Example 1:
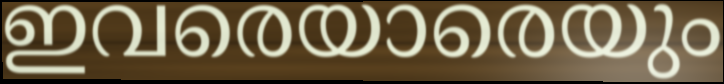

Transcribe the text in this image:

ഇവരെയാരെയും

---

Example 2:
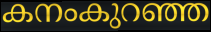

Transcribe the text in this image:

കനംകുറഞ്ഞ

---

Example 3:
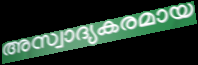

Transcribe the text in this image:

അസ്വാദ്യകരമായ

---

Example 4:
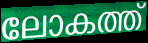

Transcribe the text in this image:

ലോകത്ത്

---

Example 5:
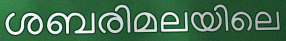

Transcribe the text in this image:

ശബരിമലയിലെ